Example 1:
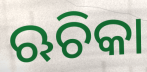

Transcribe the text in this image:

ଋଚିକା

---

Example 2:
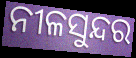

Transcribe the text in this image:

ନୀଳସୁନ୍ଦର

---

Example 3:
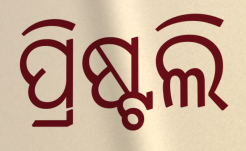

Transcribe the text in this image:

ପ୍ରିଷ୍ଟଲି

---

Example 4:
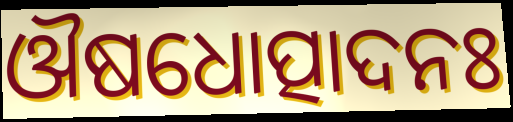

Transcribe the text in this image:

ଔଷଧୋତ୍ପାଦନଃ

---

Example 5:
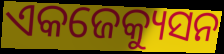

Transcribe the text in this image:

ଏକଜେକ୍ୟୁସନ